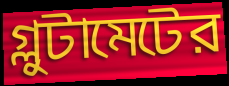
গ্লুটামেটের